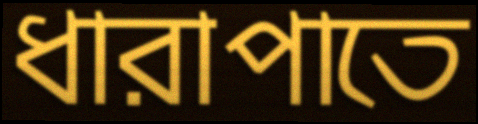
ধারাপাতে